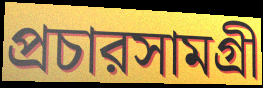
প্রচারসামগ্রী